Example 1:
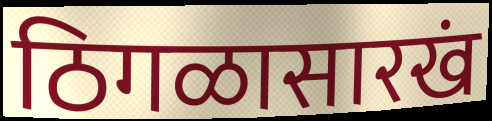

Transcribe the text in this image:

ठिगळासारखं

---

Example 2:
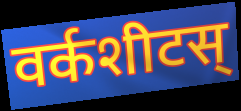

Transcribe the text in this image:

वर्कशीटस्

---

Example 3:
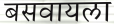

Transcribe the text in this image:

बसवायला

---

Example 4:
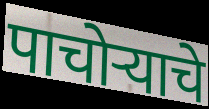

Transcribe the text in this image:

पाचोऱ्याचे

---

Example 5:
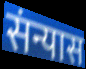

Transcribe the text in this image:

संन्यास